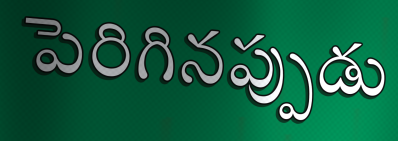
పెరిగినప్పుడు